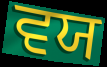
ਵਯ